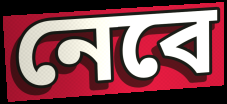
নেবে